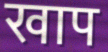
खाप